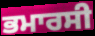
ਭਮਾਰਸੀ